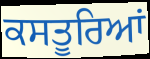
ਕਸਤੂਰਿਆਂ